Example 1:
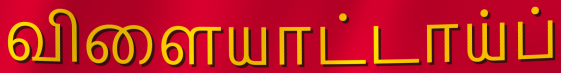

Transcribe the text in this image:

விளையாட்டாய்ப்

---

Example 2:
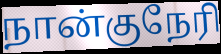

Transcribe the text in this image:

நான்குநேரி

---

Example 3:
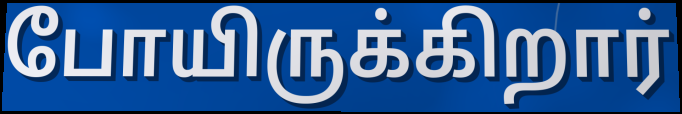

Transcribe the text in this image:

போயிருக்கிறார்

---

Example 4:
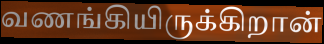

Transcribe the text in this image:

வணங்கியிருக்கிறான்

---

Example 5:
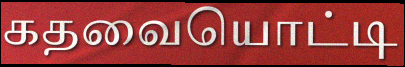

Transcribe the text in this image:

கதவையொட்டி